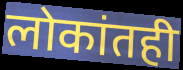
लोकांतही